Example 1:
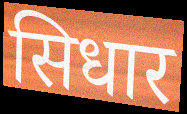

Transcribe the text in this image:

सिधार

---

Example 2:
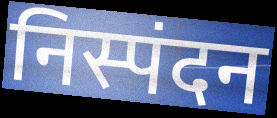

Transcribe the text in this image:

निस्पंदन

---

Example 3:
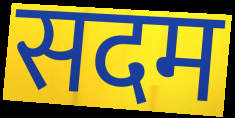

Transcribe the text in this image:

सदम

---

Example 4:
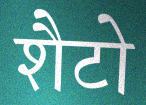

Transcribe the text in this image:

शैटो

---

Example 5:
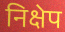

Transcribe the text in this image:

निक्षेप